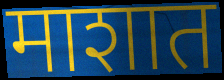
माशात